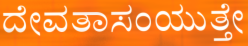
ದೇವತಾಸಂಯುತ್ತೇ